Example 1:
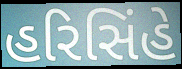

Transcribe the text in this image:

હરિસિંહે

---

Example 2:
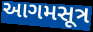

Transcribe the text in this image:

આગમસૂત્ર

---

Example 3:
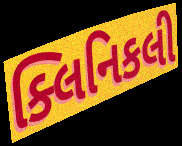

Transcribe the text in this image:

ક્લિનિકલી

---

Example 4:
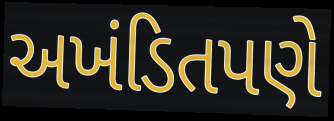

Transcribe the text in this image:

અખંડિતપણે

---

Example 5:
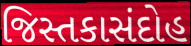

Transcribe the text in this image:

જિસ્તકાસંદોહ